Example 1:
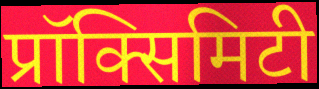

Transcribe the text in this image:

प्रॉक्सिमिटी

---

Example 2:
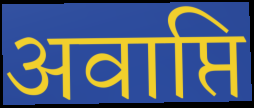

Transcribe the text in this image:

अवाप्ति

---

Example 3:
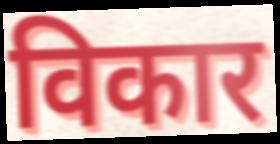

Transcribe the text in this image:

विकार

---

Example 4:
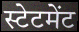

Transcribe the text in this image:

स्टेटमेंट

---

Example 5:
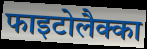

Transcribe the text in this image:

फाइटोलैक्का